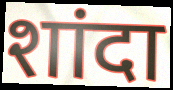
शांदा